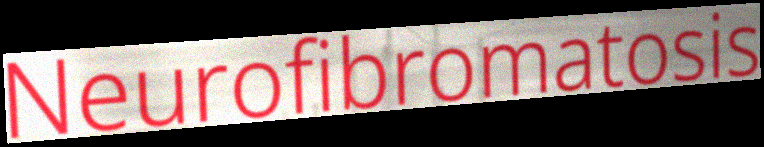
Neurofibromatosis